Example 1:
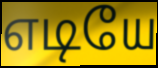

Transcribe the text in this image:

எடியே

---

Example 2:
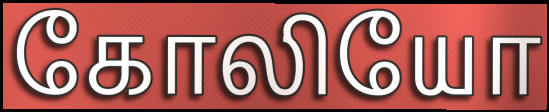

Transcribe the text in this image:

கோலியோ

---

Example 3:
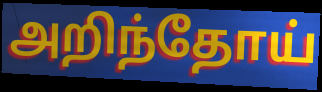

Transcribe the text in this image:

அறிந்தோய்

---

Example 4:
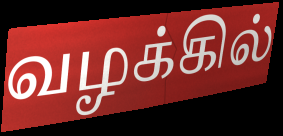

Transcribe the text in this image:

வழக்கில்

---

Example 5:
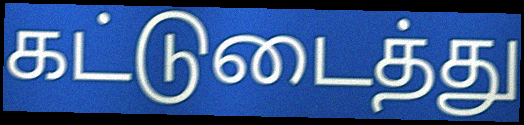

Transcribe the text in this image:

கட்டுடைத்து